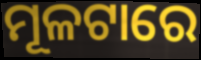
ମୂଳଟାରେ